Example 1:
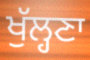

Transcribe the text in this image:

ਖੁੱਲ੍ਹਣਾ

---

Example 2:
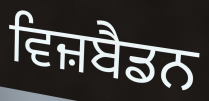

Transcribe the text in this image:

ਵਿਜ਼ਬੈਡਨ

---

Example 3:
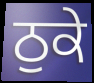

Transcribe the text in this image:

ਠੁਕੇ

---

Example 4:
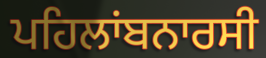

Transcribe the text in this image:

ਪਹਿਲਾਂਬਨਾਰਸੀ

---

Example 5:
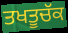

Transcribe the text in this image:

ਤਖਤੂਚੱਕ